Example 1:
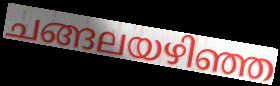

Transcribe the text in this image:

ചങ്ങലയഴിഞ്ഞ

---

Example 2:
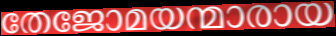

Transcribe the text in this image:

തേജോമയന്മാരായ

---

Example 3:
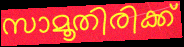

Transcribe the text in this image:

സാമൂതിരിക്ക്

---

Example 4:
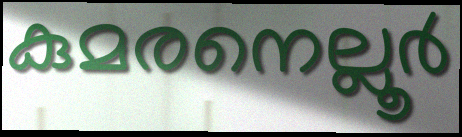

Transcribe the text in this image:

കുമരനെല്ലൂർ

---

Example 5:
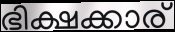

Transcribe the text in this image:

ഭിക്ഷക്കാര്